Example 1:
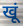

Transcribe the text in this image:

खूं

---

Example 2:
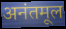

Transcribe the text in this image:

अनंतमूल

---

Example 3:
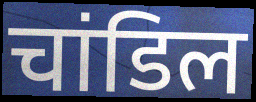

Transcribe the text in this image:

चांडिल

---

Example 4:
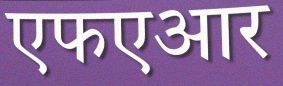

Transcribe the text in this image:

एफएआर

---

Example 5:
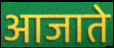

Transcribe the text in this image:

आजाते